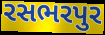
રસભરપુર